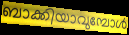
ബാക്കിയാവുമ്പോൾ